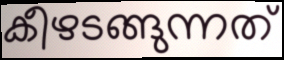
കീഴടങ്ങുന്നത്